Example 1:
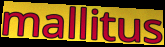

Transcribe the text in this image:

mallitus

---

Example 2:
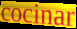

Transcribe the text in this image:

cocinar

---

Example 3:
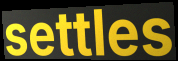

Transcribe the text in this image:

settles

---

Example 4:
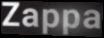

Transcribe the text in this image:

Zappa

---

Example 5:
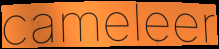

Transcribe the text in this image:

cameleer